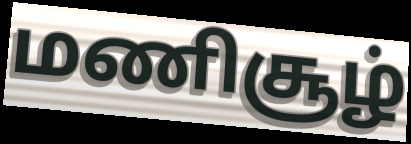
மணிசூழ்